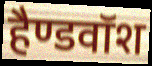
हैण्डवॉश